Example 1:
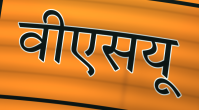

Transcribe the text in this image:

वीएसयू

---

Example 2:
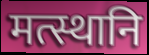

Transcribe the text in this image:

मत्स्थानि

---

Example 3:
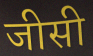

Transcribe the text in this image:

जीसी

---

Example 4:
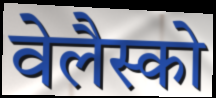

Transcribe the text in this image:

वेलैस्को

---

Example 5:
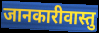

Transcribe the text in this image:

जानकारीवास्तु